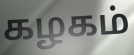
கழகம்